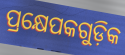
ପ୍ରକ୍ଷେପକଗୁଡ଼ିକ